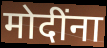
मोदींना